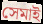
সেমাই